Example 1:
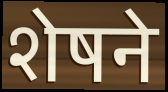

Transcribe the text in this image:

शेषने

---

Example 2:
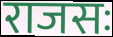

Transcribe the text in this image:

राजसः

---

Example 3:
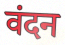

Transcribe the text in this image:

वंदन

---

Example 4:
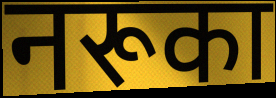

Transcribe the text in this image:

नरूका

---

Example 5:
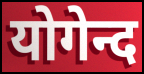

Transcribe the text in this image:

योगेन्द